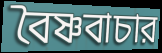
বৈষ্ণবাচার